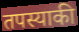
तपस्याकी